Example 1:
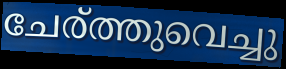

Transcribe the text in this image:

ചേര്ത്തുവെച്ചു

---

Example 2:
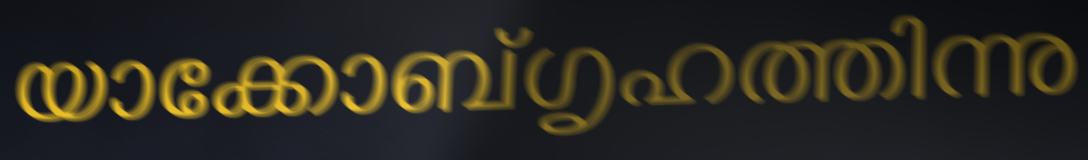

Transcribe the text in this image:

യാക്കോബ്ഗൃഹത്തിന്നു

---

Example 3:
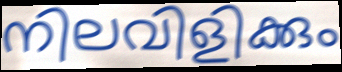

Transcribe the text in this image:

നിലവിളിക്കും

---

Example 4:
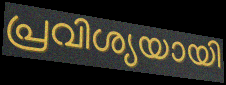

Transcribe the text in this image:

പ്രവിശ്യയായി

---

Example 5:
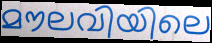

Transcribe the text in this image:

മൗലവിയിലെ